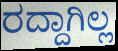
ರದ್ದಾಗಿಲ್ಲ